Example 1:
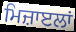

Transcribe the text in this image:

ਮਿਜ਼ਾੲਲਾਂ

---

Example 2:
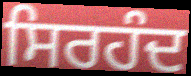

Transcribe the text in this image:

ਸਿਰਹੰਦ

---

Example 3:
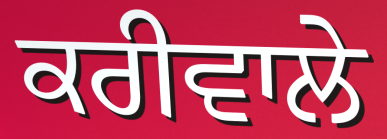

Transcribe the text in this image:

ਕਰੀਵਾਲੇ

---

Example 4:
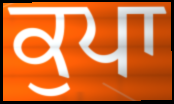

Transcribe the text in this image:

ਕੁਪਾ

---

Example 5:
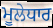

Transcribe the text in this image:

ਮੂਲੇਧਾਰ